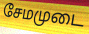
சேமமுடை